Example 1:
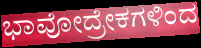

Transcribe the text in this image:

ಭಾವೋದ್ರೇಕಗಳಿಂದ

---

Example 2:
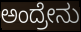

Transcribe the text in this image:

ಅಂದ್ರೇನು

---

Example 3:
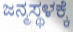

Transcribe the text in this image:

ಜನ್ಮಸ್ಥಳಕ್ಕೆ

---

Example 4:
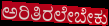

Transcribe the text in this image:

ಅರಿತಿರಲೇಬೇಕು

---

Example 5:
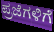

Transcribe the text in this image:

ಪ್ರಜೆಗಳಿಗೆ